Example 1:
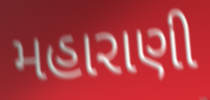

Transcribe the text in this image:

મહારાણી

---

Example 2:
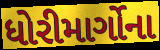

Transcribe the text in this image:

ધોરીમાર્ગોના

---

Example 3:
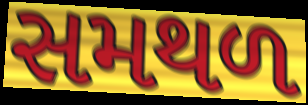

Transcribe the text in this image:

સમથળ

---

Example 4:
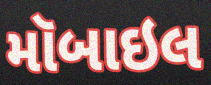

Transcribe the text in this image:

મૉબાઇલ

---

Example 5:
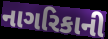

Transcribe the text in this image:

નાગરિકાની